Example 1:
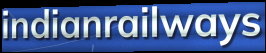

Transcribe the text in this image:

indianrailways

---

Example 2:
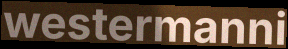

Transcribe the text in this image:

westermanni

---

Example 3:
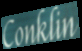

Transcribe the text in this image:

Conklin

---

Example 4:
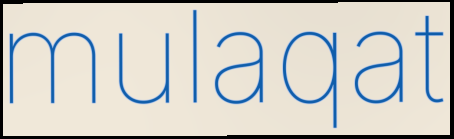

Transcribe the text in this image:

mulaqat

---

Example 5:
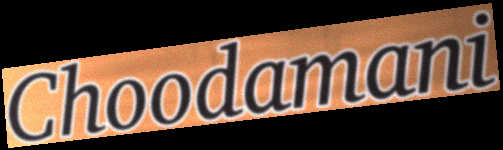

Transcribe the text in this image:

Choodamani